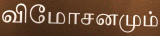
விமோசனமும்